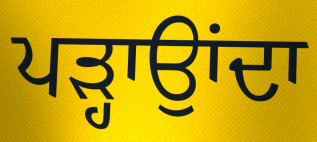
ਪੜ੍ਹਾਉਾਂਦਾ